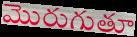
మొరుగుతూ